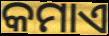
କମାଏ